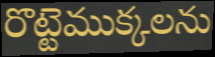
రొట్టెముక్కలను